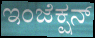
ಇಂಜೆಕ್ಷನ್